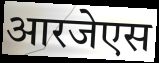
आरजेएस